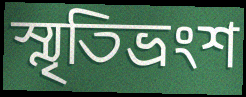
স্মৃতিভ্রংশ